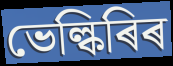
ভেল্কিৰিৰ